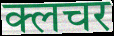
क्लचर